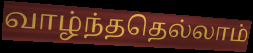
வாழ்ந்ததெல்லாம்